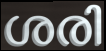
ശരി